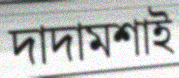
দাদামশাই